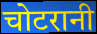
चोटरानी